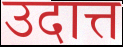
उदात्त